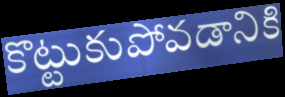
కొట్టుకుపోవడానికి